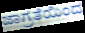
ಜಾಗ್ರತೆಯಿಂದ